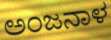
ಅಂಜನಾಳ